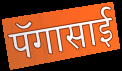
पॅगासाई